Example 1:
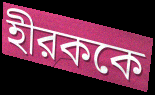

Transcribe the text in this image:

হীরককে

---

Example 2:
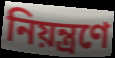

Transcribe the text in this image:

নিয়ন্ত্রণে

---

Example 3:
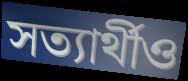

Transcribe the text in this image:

সত্যার্থীও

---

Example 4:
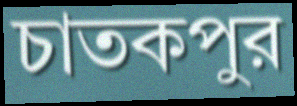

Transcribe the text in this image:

চাতকপুর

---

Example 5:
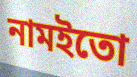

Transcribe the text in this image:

নামইতো